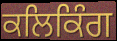
ਕਲਿਕਿੰਗ